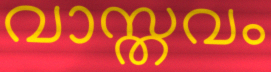
വാസ്തവം